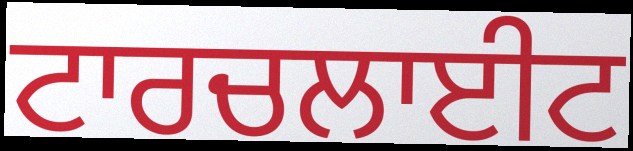
ਟਾਰਚਲਾਈਟ